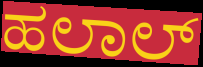
ಹಲಾಲ್